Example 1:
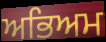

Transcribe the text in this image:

ਅਭਿਅਮ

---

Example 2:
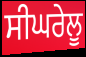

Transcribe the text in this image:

ਸੀਘਰੇਲੂ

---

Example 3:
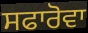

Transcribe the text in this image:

ਸਫਾਰੋਵਾ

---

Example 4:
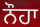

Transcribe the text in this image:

ਨੌਹਾ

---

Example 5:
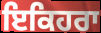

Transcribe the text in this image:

ਇਕਿਹਰਾ